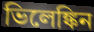
ভিলেঙ্কিন